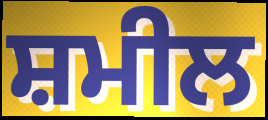
ਸ਼ਮੀਲ